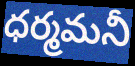
ధర్మమనీ